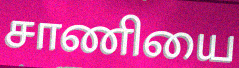
சாணியை